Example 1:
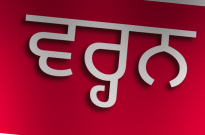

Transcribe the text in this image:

ਵਰ੍ਹਨ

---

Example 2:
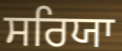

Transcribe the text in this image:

ਸਰਿਯਾ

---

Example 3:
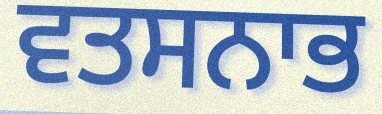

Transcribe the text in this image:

ਵਤਸਨਾਭ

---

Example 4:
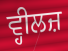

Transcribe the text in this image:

ਵ੍ਹੀਲਜ਼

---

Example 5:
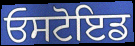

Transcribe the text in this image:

ਓਸਟੋਇਡ